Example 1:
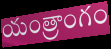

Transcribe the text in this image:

యంత్రాంగం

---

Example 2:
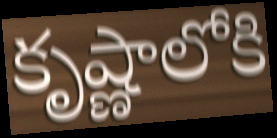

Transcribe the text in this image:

కృష్ణాలోకి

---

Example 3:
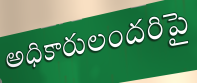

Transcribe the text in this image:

అధికారులందరిపై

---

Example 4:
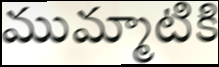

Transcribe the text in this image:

ముమ్మాటికి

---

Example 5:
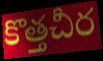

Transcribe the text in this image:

కొత్తచీర